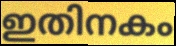
ഇതിനകം